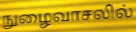
நுழைவாசலில்